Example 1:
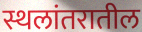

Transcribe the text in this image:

स्थलांतरातील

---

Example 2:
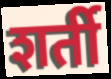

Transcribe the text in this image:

शर्ती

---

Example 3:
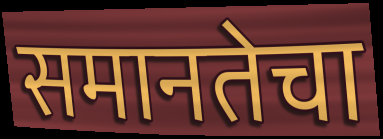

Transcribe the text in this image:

समानतेचा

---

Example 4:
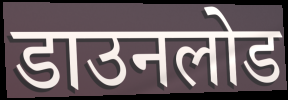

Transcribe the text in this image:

डाउनलोड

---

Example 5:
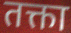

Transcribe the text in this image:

तक्ता